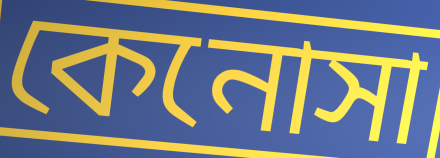
কেনোসা